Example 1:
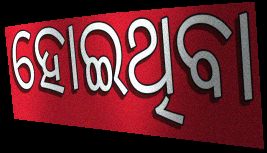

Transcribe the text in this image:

ହୋଇଥିବା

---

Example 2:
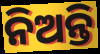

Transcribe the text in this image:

ନିଅନ୍ତି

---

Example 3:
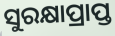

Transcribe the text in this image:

ସୁରକ୍ଷାପ୍ରାପ୍ତ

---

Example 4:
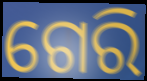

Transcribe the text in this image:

ଗେରି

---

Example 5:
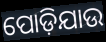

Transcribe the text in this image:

ପୋଡ଼ିଯାଉ